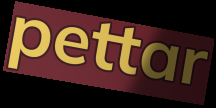
pettar